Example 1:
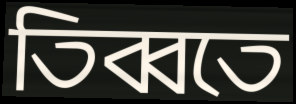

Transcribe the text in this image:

তিব্বতে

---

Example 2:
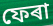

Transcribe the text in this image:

ফেৰা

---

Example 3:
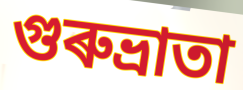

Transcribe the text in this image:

গুৰুভ্ৰাতা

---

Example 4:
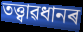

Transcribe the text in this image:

তত্ত্বাৱধানৰ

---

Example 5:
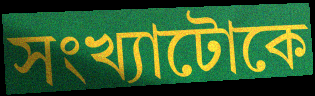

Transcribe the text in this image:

সংখ্যাটোকে